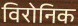
विरोनिक